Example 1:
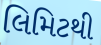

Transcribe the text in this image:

લિમિટથી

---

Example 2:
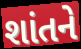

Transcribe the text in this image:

શાંતને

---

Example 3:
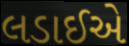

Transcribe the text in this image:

લડાઈએ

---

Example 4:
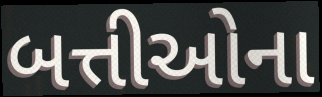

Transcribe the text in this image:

બત્તીઓના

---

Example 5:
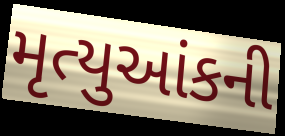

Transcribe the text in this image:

મૃત્યુઆંકની